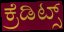
ಕ್ರೆಡಿಟ್ಸ್